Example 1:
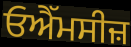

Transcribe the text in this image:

ਓਐੱਮਸੀਜ਼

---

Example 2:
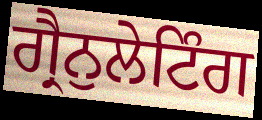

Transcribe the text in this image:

ਗ੍ਰੈਨੁਲੇਟਿੰਗ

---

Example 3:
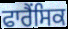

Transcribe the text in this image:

ਫਾਰੈਂਸਿਕ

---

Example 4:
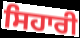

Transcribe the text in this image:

ਸਿਹਾਰੀ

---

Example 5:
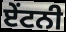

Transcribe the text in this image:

ਏਂਟਨੀ